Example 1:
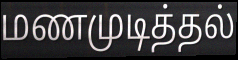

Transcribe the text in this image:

மணமுடித்தல்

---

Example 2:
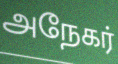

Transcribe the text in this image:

அநேகர்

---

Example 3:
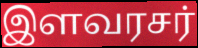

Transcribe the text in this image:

இளவரசர்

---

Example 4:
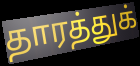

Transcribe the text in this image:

தாரத்துக்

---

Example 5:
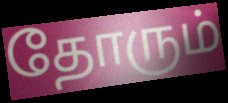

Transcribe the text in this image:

தோரும்